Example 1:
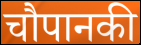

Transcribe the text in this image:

चौपानकी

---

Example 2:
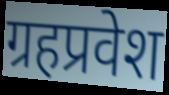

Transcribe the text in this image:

ग्रहप्रवेश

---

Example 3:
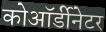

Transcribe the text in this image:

कोऑर्डीनेटर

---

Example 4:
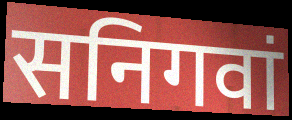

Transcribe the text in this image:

सनिगवां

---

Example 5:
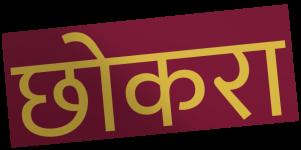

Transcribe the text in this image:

छोकरा